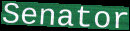
Senator